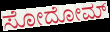
ಸೋದೋಮ್